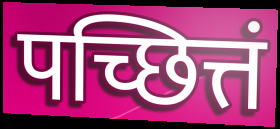
पच्छित्तं